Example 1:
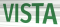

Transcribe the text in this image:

VISTA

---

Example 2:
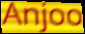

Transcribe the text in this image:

Anjoo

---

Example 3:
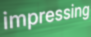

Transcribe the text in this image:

impressing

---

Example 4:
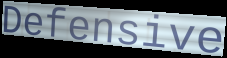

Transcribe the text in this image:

Defensive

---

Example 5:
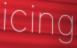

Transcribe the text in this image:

icing